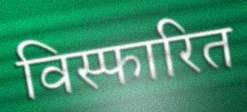
विस्फारित